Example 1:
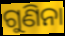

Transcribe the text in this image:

ଗୁଣିନା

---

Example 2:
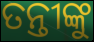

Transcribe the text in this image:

ତନ୍ତୀଙ୍କୁ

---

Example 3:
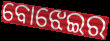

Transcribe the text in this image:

ବୋଝେଇର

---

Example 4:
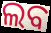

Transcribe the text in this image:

ଲବ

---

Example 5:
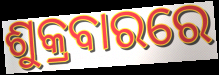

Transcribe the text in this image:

ଶୁକ୍ରବାରରେ